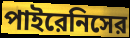
পাইরেনিসের